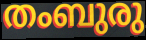
തംബുരു